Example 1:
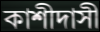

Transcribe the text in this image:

কাশীদাসী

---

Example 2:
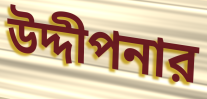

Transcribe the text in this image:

উদ্দীপনার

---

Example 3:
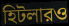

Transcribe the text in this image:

হিটলারও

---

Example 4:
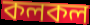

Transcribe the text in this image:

কলকল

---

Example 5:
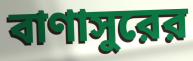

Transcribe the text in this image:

বাণাসুরের